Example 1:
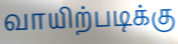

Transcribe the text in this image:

வாயிற்படிக்கு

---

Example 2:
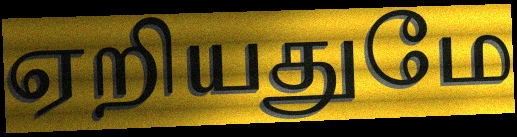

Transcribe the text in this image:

ஏறியதுமே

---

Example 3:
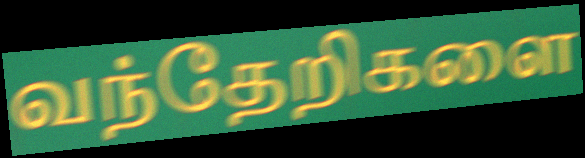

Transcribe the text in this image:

வந்தேறிகளை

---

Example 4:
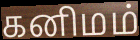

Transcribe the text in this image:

கனிமம்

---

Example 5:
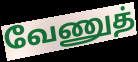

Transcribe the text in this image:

வேணுத்